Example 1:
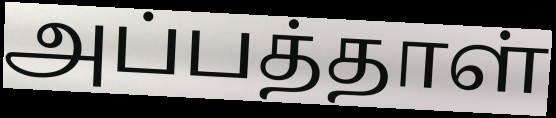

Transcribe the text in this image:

அப்பத்தாள்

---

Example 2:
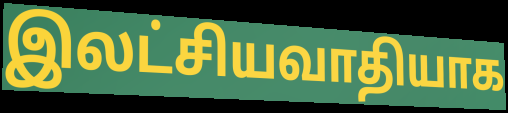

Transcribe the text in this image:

இலட்சியவாதியாக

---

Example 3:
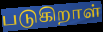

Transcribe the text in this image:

படுகிறாள்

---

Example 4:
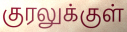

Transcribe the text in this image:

குரலுக்குள்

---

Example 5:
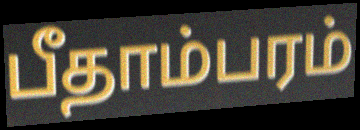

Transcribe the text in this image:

பீதாம்பரம்